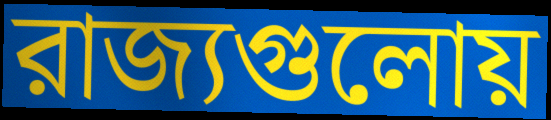
রাজ্যগুলোয়